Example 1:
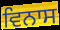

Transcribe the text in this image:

ਵਿਨਾਸ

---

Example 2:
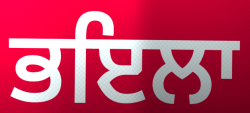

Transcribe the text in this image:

ਭਇਲਾ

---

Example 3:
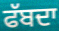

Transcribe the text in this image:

ਫੱਬਦਾ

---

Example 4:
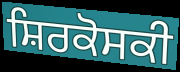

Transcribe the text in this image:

ਸ਼ਿਰਕੋਸਕੀ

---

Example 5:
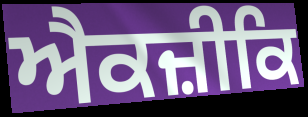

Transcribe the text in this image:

ਐਕਜ਼ੀਕਿ